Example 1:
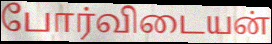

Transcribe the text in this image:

போர்விடையன்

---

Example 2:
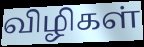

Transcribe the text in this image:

விழிகள்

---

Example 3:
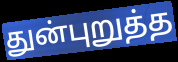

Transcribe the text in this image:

துன்புறுத்த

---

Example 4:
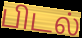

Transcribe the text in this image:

பிடல்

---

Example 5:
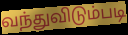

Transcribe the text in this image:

வந்துவிடும்படி